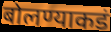
बोलण्याकडं